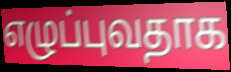
எழுப்புவதாக